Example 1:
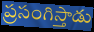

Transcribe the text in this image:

ప్రసంగిస్తాడు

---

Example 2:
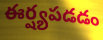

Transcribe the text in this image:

ఈర్ష్యపడడం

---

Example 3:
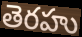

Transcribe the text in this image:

తెరహు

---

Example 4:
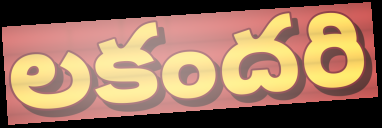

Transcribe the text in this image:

లకందరి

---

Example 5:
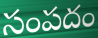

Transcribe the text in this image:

సంపదం